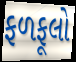
ફળફૂલો